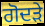
ਗੋਦੜੇ